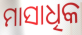
ମାସାଧିକ